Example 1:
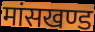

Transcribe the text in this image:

मांसखण्ड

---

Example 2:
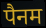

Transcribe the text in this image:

पैनम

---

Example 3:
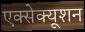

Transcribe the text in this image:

एक्सेक्यूशन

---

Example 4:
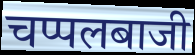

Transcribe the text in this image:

चप्पलबाजी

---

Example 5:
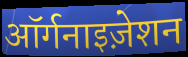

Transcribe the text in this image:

ऑर्गनाइज़ेशन